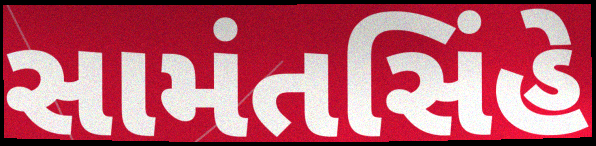
સામંતસિંહે